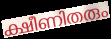
ക്ഷീണിതരും